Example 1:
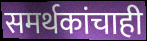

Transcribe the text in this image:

समर्थकांचाही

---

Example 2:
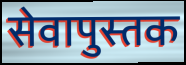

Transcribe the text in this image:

सेवापुस्तक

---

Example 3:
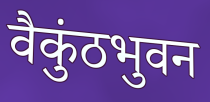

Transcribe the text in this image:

वैकुंठभुवन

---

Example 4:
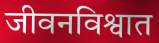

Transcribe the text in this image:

जीवनविश्वात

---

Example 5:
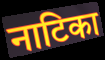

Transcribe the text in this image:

नाटिका